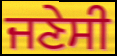
ਜਣੇਸੀ